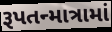
રૂપતન્માત્રામાં